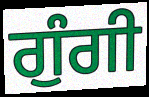
ਗੁੰਗੀ